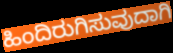
ಹಿಂದಿರುಗಿಸುವುದಾಗಿ